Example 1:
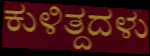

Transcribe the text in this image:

ಕುಳಿತ್ದದಳು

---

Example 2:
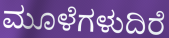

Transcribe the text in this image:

ಮೂಳೆಗಳುದಿರೆ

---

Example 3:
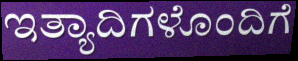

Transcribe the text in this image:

ಇತ್ಯಾದಿಗಳೊಂದಿಗೆ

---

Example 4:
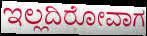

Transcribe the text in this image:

ಇಲ್ಲದಿರೋವಾಗ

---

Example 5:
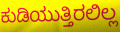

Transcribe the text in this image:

ಕುಡಿಯುತ್ತಿರಲಿಲ್ಲ